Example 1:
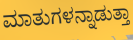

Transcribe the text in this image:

ಮಾತುಗಳನ್ನಾಡುತ್ತಾ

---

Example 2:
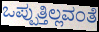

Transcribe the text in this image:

ಒಪ್ಪುತ್ತಿಲ್ಲವಂತೆ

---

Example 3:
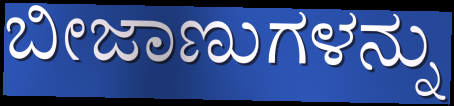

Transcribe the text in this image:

ಬೀಜಾಣುಗಳನ್ನು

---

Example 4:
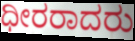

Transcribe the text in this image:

ಧೀರರಾದರು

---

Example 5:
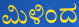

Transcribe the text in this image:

ಮಿಳಿಂದ